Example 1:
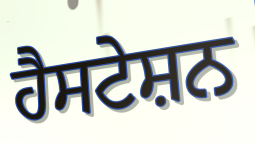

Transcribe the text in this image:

ਹੈਸਟੇਸ਼ਨ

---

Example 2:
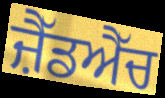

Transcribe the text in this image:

ਜ਼ੈੱਡਐੱਚ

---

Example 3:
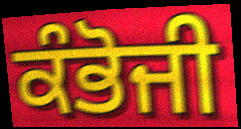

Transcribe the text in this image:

ਕੰਭੋਜੀ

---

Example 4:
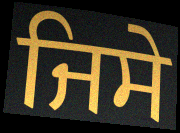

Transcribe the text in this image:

ਜਿਸੇ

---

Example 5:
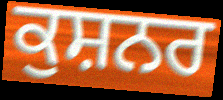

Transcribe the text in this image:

ਕੁਸ਼ਨਰ